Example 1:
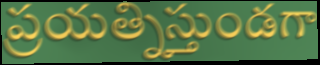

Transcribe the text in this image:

ప్రయత్నిస్తుండగా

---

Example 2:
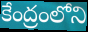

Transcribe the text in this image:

కేంద్రంలోని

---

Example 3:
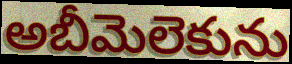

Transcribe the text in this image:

అబీమెలెకును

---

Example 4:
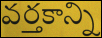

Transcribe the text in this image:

వర్తకాన్ని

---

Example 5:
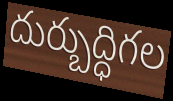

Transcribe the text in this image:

దుర్బుద్ధిగల